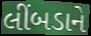
લીંબડાને